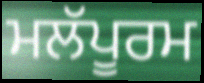
ਮਲੱਪੂਰਮ